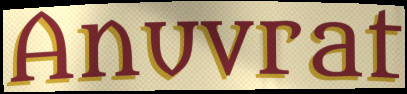
Anuvrat